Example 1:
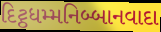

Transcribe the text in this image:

દિટ્ઠધમ્મનિબ્બાનવાદા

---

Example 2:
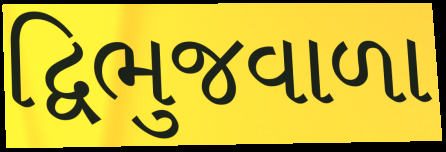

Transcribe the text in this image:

દ્વિભુજવાળા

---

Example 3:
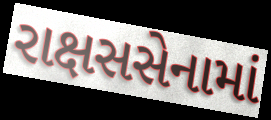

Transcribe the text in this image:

રાક્ષસસેનામાં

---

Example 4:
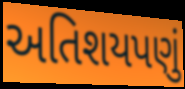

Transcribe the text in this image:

અતિશયપણું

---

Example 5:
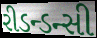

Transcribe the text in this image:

રીડન્ડન્સી